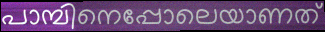
പാമ്പിനെപ്പോലെയാണത്